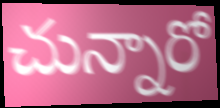
చున్నారో